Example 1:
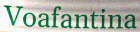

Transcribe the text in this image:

Voafantina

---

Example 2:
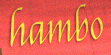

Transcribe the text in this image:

hambo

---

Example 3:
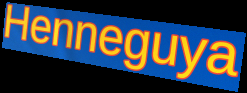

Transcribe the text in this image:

Henneguya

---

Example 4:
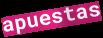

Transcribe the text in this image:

apuestas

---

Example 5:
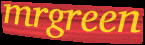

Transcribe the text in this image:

mrgreen